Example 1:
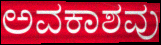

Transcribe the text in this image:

ಅವಕಾಶವು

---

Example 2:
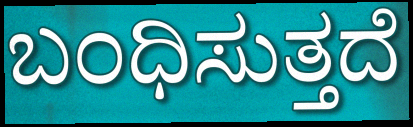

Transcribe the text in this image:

ಬಂಧಿಸುತ್ತದೆ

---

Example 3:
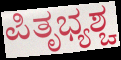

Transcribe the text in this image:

ಪಿತೃಭ್ಯಶ್ಚ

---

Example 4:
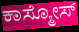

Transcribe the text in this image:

ಕಾಸ್ಮೋಸ್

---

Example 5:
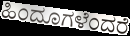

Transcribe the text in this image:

ಹಿಂದೂಗಳೆಂದರೆ